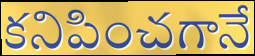
కనిపించగానే